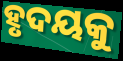
ହୃଦୟକୁ